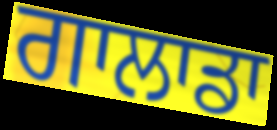
ਗਾਲਾਡਾ